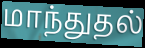
மாந்துதல்